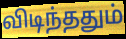
விடிந்ததும்